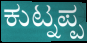
ಕುಟ್ನಪ್ಪ